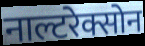
नाल्टरेक्सोन